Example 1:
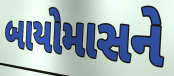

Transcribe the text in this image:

બાયોમાસને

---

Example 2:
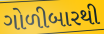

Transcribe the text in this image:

ગોળીબારથી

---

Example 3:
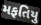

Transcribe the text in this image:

મફતિયુ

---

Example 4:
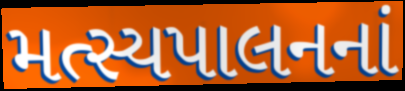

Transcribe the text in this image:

મત્સ્યપાલનનાં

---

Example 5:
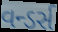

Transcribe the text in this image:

વન્ડર્સ